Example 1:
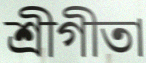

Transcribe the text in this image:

শ্রীগীতা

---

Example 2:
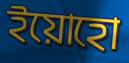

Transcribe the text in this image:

ইয়োহো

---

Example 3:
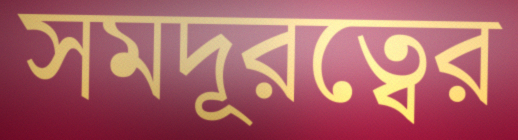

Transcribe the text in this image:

সমদূরত্বের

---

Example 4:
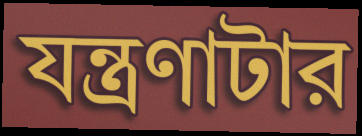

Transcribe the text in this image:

যন্ত্রণাটার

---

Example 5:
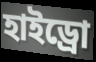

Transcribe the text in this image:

হাইড্রো